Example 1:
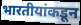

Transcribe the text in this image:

भारतीयांकडून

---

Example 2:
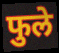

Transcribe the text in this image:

फुले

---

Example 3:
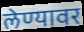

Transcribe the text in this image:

लेण्यावर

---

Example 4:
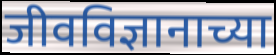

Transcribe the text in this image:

जीवविज्ञानाच्या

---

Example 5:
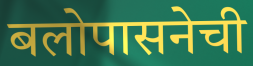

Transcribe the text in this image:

बलोपासनेची